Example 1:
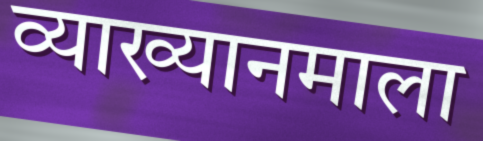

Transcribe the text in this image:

व्याख्यानमाला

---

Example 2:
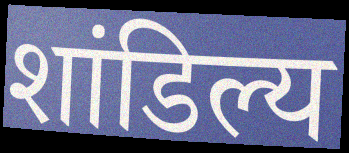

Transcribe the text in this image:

शांडिल्य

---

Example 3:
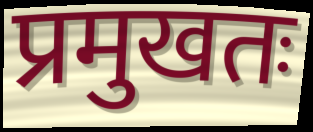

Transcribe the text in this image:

प्रमुखतः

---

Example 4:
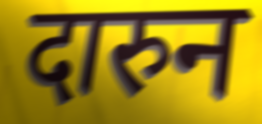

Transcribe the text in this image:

दारुन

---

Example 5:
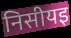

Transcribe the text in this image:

निसीयइ